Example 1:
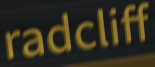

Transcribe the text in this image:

radcliff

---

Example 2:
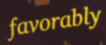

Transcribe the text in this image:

favorably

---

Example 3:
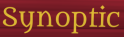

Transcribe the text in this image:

Synoptic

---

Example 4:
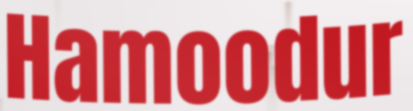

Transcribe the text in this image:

Hamoodur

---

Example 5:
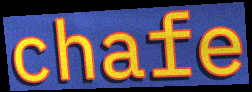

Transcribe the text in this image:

chafe